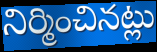
నిర్మించినట్లు